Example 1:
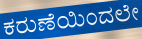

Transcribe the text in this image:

ಕರುಣೆಯಿಂದಲೇ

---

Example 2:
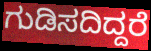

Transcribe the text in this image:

ಗುಡಿಸದಿದ್ದರೆ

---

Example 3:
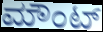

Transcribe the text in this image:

ಮೌಂಟ್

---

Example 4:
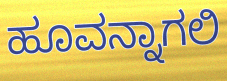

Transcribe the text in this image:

ಹೂವನ್ನಾಗಲಿ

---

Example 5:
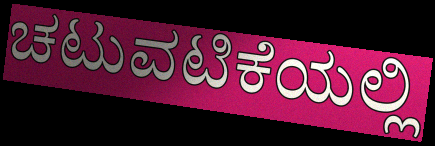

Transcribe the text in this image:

ಚಟುವಟಿಕೆಯಲ್ಲಿ